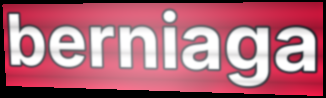
berniaga